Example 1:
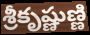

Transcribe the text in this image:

శ్రీకృష్ణుణ్ణి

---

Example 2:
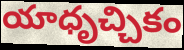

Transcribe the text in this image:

యాధృచ్చికం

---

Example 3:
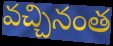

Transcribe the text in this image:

వచ్చినంత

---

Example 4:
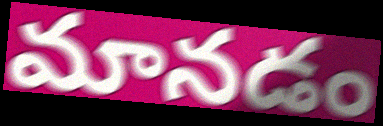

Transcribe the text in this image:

మానడం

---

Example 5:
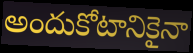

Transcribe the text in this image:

అందుకోటానికైనా